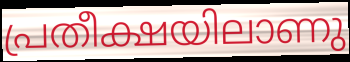
പ്രതീക്ഷയിലാണു